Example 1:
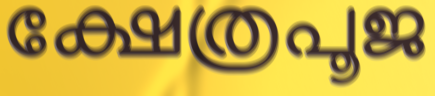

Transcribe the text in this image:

ക്ഷേത്രപൂജ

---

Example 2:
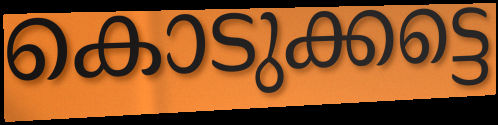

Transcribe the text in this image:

കൊടുക്കട്ടെ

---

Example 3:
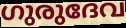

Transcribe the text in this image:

ഗുരുദേവ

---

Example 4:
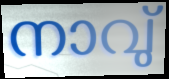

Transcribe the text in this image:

നാവു്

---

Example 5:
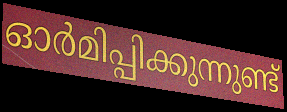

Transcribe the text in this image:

ഓർമിപ്പിക്കുന്നുണ്ട്